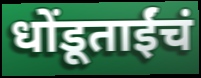
धोंडूताईंचं